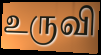
உருவி